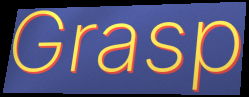
Grasp